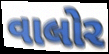
વાલોર